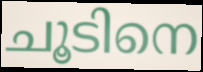
ചൂടിനെ